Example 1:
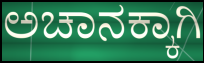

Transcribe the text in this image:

ಅಚಾನಕ್ಕಾಗಿ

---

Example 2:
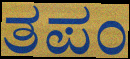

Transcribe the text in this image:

ತಪಂ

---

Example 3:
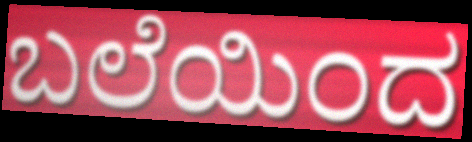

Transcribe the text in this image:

ಬಲೆಯಿಂದ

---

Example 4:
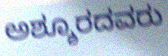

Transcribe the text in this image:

ಅಶ್ಶೂರದವರು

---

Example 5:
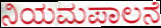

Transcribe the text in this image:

ನಿಯಮಪಾಲನೆ